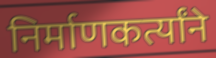
निर्माणकर्त्यांने